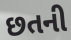
છતની